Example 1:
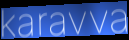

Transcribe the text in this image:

karavva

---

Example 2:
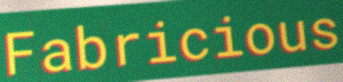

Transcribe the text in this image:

Fabricious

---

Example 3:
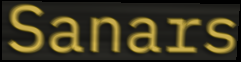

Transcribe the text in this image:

Sanars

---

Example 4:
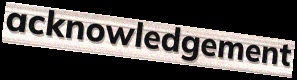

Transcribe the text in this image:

acknowledgement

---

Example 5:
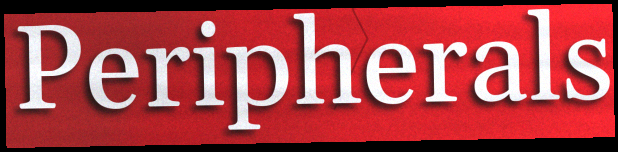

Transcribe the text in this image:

Peripherals